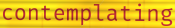
contemplating